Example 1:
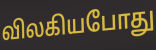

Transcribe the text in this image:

விலகியபோது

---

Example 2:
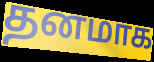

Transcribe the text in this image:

தனமாக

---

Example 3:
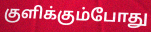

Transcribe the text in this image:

குளிக்கும்போது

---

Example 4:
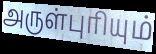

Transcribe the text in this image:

அருள்புரியும்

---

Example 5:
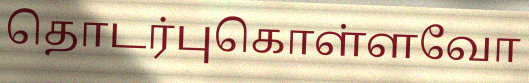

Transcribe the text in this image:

தொடர்புகொள்ளவோ